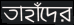
তাহাঁদের